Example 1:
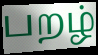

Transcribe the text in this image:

பறழ்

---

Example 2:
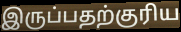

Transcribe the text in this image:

இருப்பதற்குரிய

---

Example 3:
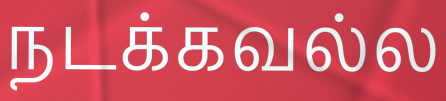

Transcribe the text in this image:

நடக்கவல்ல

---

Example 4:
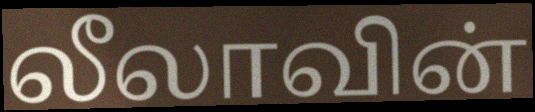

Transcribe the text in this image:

லீலாவின்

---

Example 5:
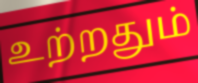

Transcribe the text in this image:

உற்றதும்